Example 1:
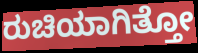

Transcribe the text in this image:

ರುಚಿಯಾಗಿತ್ತೋ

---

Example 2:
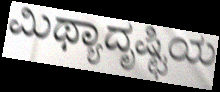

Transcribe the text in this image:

ಮಿಥ್ಯಾದೃಷ್ಟಿಯ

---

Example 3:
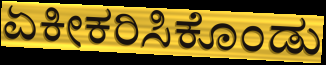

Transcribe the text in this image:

ಏಕೀಕರಿಸಿಕೊಂಡು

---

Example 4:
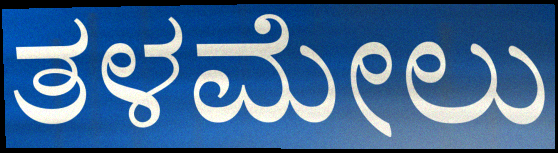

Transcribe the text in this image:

ತಳಮೇಲು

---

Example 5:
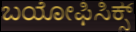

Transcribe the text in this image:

ಬಯೋಫಿಸಿಕ್ಸ್